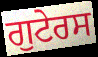
ਗੁਟੇਰਸ